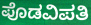
ಪೊಡವಿಪತಿ